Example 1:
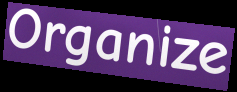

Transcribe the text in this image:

Organize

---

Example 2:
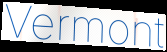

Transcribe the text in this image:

Vermont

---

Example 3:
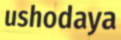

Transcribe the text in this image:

ushodaya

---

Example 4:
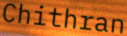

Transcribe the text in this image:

Chithran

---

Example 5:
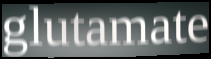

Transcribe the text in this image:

glutamate